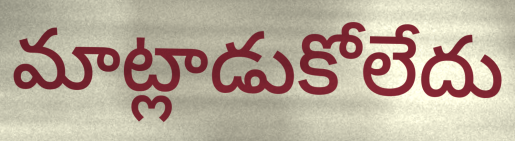
మాట్లాడుకోలేదు